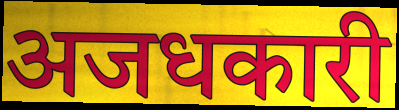
अजधकारी